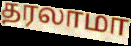
தரலாமா